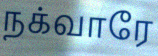
நக்வாரே